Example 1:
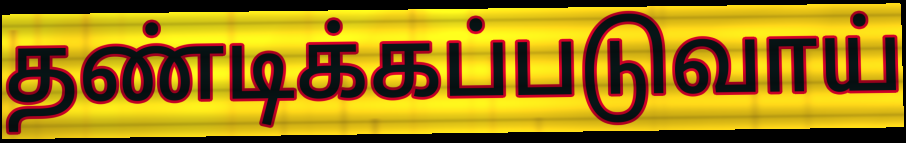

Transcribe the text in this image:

தண்டிக்கப்படுவாய்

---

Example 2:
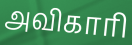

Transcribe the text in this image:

அவிகாரி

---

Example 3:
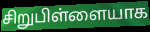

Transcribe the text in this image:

சிறுபிள்ளையாக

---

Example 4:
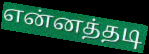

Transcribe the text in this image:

என்னத்தடி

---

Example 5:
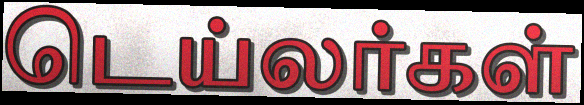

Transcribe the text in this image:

டெய்லர்கள்